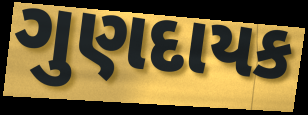
ગુણદાયક